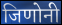
जिणोनी